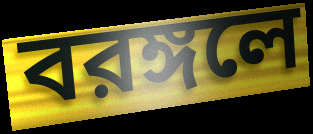
বরঙ্গলে